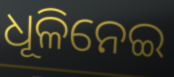
ଧୂଳିନେଇ